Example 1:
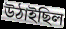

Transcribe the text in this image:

উঠাইছিল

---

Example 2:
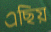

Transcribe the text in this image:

এছিয়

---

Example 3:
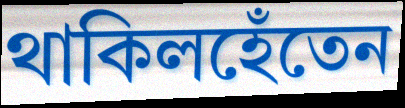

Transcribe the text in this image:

থাকিলহেঁতেন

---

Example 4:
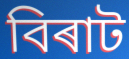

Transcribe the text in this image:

বিৰাট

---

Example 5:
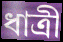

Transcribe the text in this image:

ধাত্ৰী